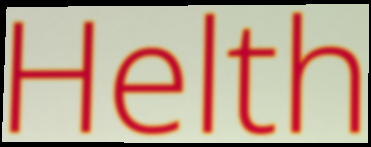
Helth